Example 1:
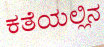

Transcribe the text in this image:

ಕತೆಯಲ್ಲಿನ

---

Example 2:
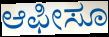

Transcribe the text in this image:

ಆಫೀಸೂ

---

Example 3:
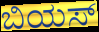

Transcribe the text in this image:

ಬಿಯಸ್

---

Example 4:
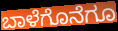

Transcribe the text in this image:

ಬಾಳೆಗೊನೆಗೂ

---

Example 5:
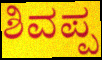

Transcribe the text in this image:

ಶಿವಪ್ಪ